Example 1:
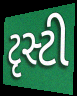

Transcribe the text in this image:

ટૃસ્ટી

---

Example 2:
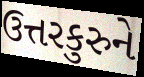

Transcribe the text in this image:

ઉત્તરકુરુને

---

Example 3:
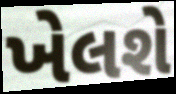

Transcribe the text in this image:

ખેલશે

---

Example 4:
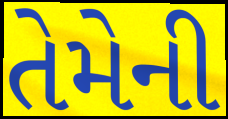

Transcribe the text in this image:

તેમેની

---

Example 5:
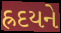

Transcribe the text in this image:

હ્રદયને